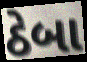
ઠેબા